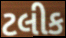
ટલીક